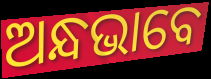
ଅନ୍ଧଭାବେ